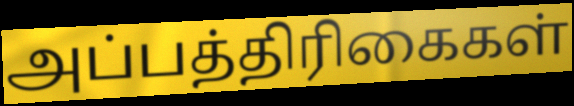
அப்பத்திரிகைகள்